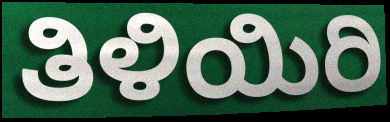
ತಿಳಿಯಿರಿ